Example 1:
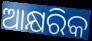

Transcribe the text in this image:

ଆକ୍ଷରିକ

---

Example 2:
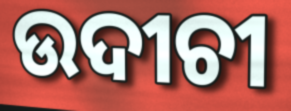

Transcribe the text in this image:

ଉଦୀଚୀ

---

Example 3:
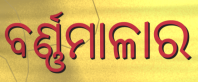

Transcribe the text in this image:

ବର୍ଣ୍ଣମାଳାର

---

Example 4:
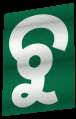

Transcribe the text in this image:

ଚୁ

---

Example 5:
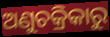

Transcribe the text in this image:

ଅଣୁଚକ୍ରିକାରୁ